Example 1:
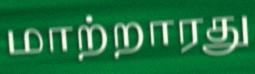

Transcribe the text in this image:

மாற்றாரது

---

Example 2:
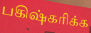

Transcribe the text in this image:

பகிஷ்கரிக்க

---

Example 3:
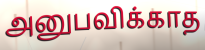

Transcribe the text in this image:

அனுபவிக்காத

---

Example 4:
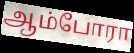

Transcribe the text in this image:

ஆம்போரா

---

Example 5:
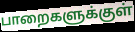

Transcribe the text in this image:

பாறைகளுக்குள்